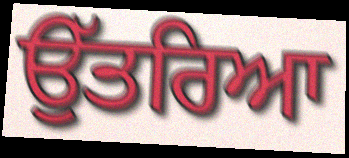
ਉੱਤਰਿਆ